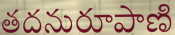
తదనురూపాణి